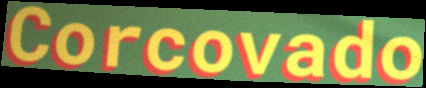
Corcovado